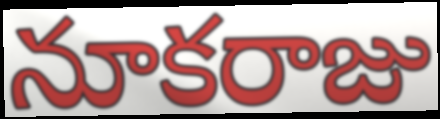
నూకరాజు